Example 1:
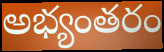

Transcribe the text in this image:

అభ్యంతరం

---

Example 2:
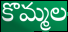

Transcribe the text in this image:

కొమ్మల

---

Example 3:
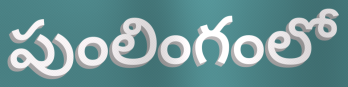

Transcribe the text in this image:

పుంలింగంలో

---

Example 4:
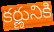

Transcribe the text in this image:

కర్ణునికి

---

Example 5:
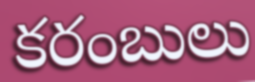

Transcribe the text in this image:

కరంబులు